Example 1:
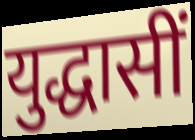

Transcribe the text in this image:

युद्धासीं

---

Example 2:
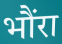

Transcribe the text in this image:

भौंरा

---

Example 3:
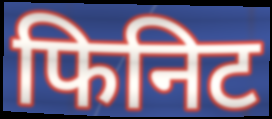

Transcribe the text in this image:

फिनिट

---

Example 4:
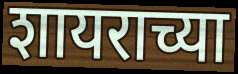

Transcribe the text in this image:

शायराच्या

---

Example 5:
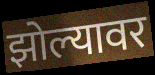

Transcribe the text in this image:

झोल्यावर